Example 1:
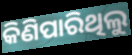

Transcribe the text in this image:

କିଣିପାରିଥିଲୁ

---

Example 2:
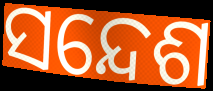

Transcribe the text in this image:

ସନ୍ଦେଶ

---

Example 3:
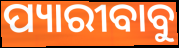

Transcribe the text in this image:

ପ୍ୟାରୀବାବୁ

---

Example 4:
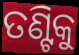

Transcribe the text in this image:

ତଣ୍ଟିକୁ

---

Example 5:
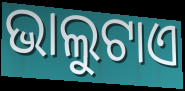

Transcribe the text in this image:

ଭାଲୁଟାଏ